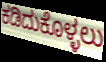
ಕಡಿದುಕೊಳ್ಳಲು